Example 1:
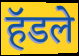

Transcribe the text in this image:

हॅडले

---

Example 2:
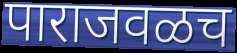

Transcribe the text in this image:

पाराजवळच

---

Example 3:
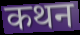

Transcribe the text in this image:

कथन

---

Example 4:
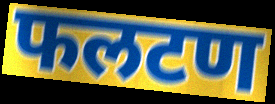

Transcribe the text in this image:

फलटण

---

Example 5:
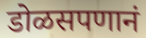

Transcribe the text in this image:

डोळसपणानं